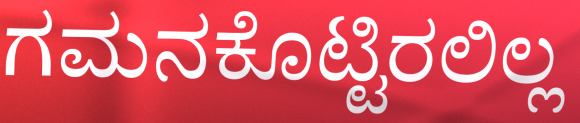
ಗಮನಕೊಟ್ಟಿರಲಿಲ್ಲ